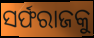
ସର୍ଫରାଜକୁ